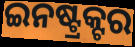
ଇନଷ୍ଟ୍ରକ୍ଟର